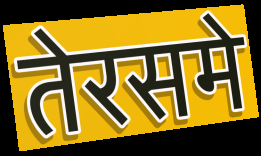
तेरसमे